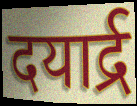
दयार्द्र